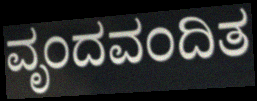
ವೃಂದವಂದಿತ